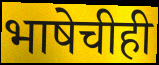
भाषेचीही